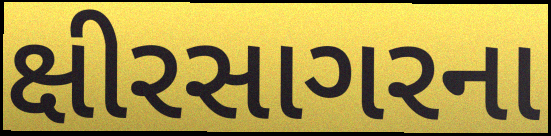
ક્ષીરસાગરના